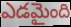
ఎడమైంది